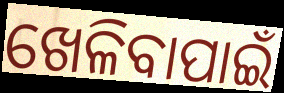
ଖେଳିବାପାଇଁ